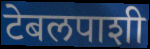
टेबलपाशी